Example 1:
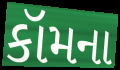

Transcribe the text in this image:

કૉમના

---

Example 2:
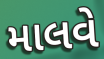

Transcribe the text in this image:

માલવે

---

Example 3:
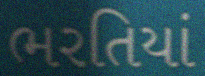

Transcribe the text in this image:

ભરતિયાં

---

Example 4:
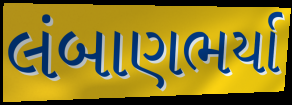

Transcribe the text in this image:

લંબાણભર્યા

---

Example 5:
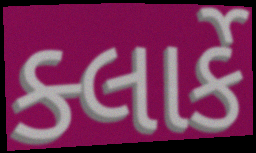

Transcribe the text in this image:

ક્લાર્કે